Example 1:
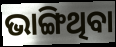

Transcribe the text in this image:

ଭାଙ୍ଗିଥିବା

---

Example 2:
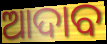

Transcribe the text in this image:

ଆଦାବ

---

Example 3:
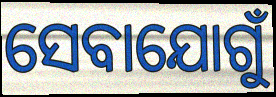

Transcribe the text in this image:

ସେବାଯୋଗୁଁ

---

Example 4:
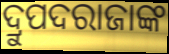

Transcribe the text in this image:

ଦ୍ରୁପଦରାଜାଙ୍କ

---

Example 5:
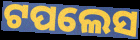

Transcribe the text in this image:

ଟପଲେସ